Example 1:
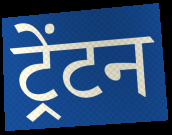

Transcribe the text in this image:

ट्रेंटन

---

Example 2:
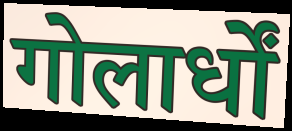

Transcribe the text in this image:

गोलार्धों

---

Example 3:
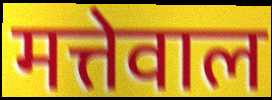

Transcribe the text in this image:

मत्तेवाल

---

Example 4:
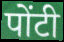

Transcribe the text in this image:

पोंटी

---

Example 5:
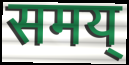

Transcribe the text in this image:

समय्